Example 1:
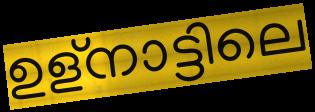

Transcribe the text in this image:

ഉള്നാട്ടിലെ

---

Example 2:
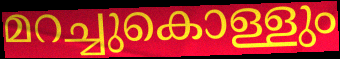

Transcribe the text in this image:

മറച്ചുകൊള്ളും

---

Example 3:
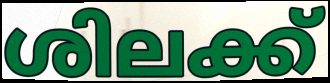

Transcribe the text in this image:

ശിലക്ക്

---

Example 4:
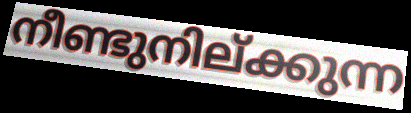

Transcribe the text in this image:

നീണ്ടുനില്ക്കുന്ന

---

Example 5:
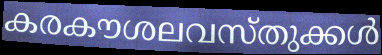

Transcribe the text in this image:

കരകൗശലവസ്തുക്കൾ